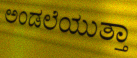
ಅಂಡಲೆಯುತ್ತಾ